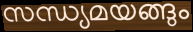
സന്ധ്യമയങ്ങും